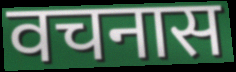
वचनास